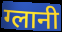
ग्लानी